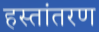
हस्तांतरण